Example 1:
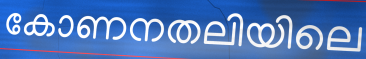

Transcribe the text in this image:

കോണനതലിയിലെ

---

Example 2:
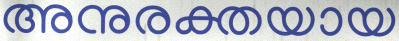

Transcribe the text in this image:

അനുരക്തയായ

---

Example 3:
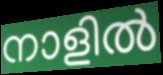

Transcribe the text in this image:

നാളിൽ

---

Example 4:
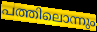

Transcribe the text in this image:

പത്തിലൊന്നും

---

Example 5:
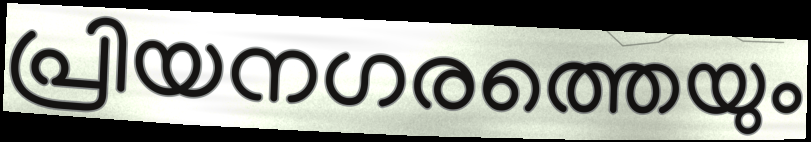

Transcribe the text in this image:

പ്രിയനഗരത്തെയും